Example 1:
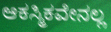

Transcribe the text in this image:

ಆಕಸ್ಮಿಕವೇನಲ್ಲ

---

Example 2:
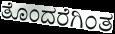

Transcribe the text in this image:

ತೊಂದರೆಗಿಂತ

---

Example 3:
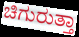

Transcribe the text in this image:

ಚಿಗುರುತ್ತಾ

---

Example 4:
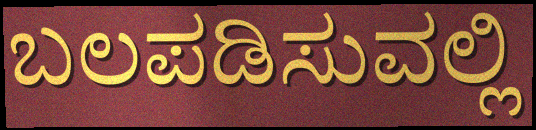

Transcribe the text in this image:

ಬಲಪಡಿಸುವಲ್ಲಿ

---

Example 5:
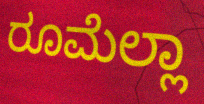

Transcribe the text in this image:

ರೂಮೆಲ್ಲಾ